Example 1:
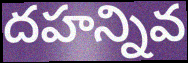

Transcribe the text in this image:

దహన్నివ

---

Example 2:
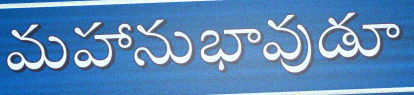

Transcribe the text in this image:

మహానుభావుడూ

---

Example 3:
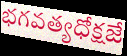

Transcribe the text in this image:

భగవత్యధోక్షజే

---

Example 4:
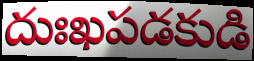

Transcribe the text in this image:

దుఃఖపడకుడి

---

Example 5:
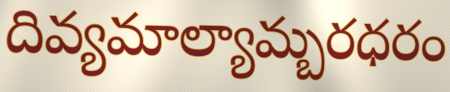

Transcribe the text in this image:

దివ్యమాల్యామ్బరధరం